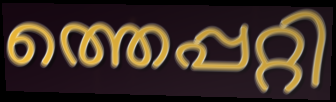
ത്തെപ്പറ്റി